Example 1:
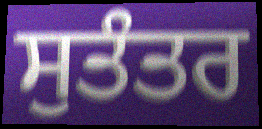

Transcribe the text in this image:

ਸੁਤੰਤਰ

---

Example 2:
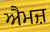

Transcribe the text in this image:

ਐਮਜ਼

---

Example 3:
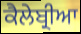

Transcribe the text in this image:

ਕੈਲੇਬ੍ਰੀਆ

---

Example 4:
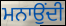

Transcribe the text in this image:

ਮਨਾਉਂਦੀ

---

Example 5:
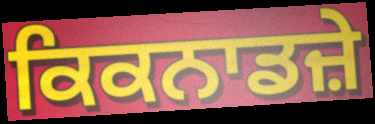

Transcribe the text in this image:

ਕਿਕਨਾਡਜ਼ੇ